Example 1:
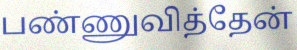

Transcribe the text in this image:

பண்ணுவித்தேன்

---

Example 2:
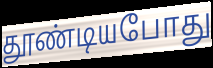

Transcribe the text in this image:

தூண்டியபோது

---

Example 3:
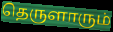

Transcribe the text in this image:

தெருளாரும்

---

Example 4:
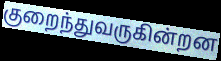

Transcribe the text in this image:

குறைந்துவருகின்றன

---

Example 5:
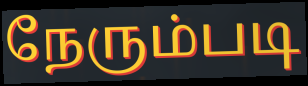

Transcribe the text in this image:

நேரும்படி